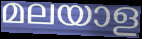
മലയാള